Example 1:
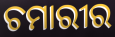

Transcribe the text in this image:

ଚମାରୀର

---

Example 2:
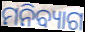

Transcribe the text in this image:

ମନିବ୍ୟାଗ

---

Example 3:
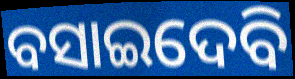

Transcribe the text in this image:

ବସାଇଦେବି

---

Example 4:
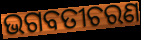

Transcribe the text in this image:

ଭଗବତୀଚରଣ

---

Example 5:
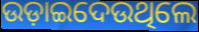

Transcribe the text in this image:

ଉଡ଼ାଇଦେଉଥିଲେ